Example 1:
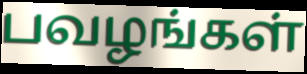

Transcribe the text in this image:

பவழங்கள்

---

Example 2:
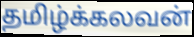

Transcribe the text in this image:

தமிழ்க்கலவன்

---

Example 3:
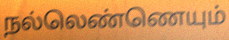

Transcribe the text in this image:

நல்லெண்ணெயும்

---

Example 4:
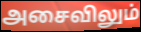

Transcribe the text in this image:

அசைவிலும்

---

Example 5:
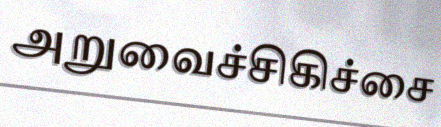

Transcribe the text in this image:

அறுவைச்சிகிச்சை